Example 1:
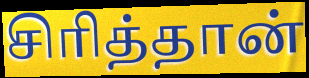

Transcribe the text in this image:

சிரித்தான்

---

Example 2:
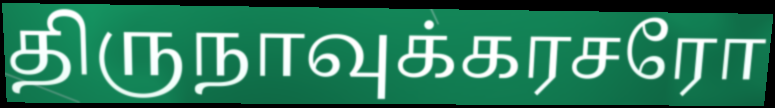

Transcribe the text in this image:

திருநாவுக்கரசரோ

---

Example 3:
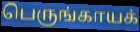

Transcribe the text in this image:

பெருங்காயக்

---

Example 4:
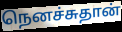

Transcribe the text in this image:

நெனச்சுதான்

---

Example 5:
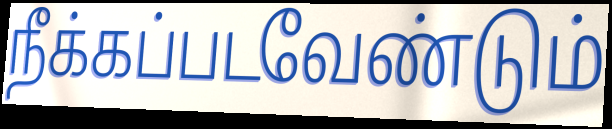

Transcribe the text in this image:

நீக்கப்படவேண்டும்